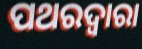
ପଥରଦ୍ୱାରା